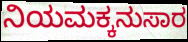
ನಿಯಮಕ್ಕನುಸಾರ